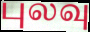
புலவு